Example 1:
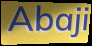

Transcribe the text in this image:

Abaji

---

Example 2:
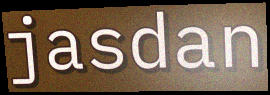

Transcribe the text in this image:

jasdan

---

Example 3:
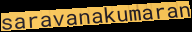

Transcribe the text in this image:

saravanakumaran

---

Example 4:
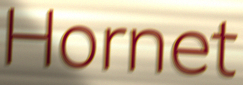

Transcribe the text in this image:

Hornet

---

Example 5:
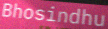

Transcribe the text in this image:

Bhosindhu